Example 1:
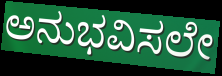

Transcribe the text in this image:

ಅನುಭವಿಸಲೇ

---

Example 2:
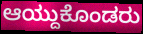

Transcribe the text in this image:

ಆಯ್ದುಕೊಂಡರು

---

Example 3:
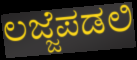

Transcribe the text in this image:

ಲಜ್ಜೆಪಡಲಿ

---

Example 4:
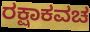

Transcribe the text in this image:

ರಕ್ಷಾಕವಚ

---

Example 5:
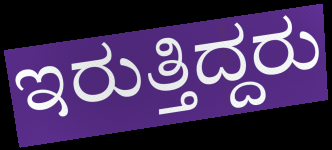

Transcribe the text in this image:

ಇರುತ್ತಿದ್ದರು